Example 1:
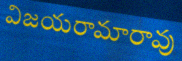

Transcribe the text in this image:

విజయరామారావు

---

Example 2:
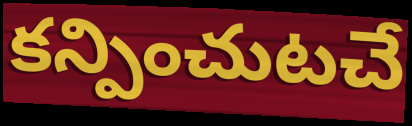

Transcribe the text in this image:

కన్పించుటచే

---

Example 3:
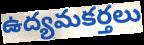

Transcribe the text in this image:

ఉద్యమకర్తలు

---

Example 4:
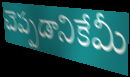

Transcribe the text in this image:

చెప్పడానికేమీ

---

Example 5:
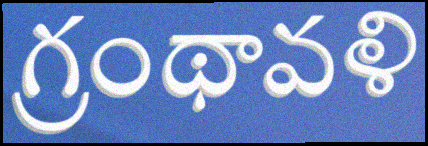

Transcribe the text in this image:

గ్రంథావళి